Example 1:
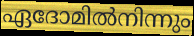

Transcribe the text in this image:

ഏദോമിൽനിന്നും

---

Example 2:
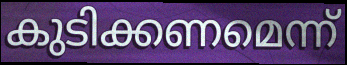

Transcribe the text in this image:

കുടിക്കണമെന്ന്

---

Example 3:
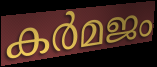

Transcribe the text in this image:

കർമജം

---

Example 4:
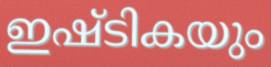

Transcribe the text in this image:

ഇഷ്ടികയും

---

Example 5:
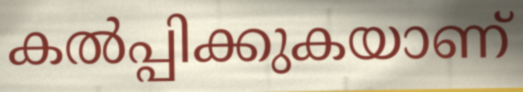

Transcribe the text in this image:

കൽപ്പിക്കുകയാണ്